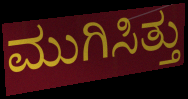
ಮುಗಿಸಿತ್ತು